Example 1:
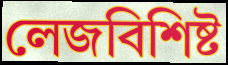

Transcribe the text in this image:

লেজবিশিষ্ট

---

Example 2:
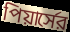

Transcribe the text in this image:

পিয়ার্সের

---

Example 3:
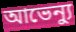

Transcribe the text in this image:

আভেন্যু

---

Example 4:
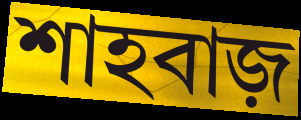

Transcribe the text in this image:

শাহবাজ়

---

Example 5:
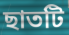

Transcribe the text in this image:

ছাতটি